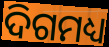
ଦିଗମଧ୍ୟ